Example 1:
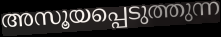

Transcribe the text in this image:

അസൂയപ്പെടുത്തുന്ന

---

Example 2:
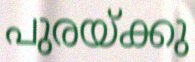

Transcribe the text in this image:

പുരയ്ക്കു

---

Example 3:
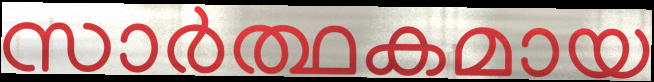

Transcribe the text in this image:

സാർത്ഥകമായ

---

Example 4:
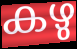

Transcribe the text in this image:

കഴു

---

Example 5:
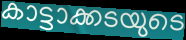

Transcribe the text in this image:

കാട്ടാക്കടയുടെ